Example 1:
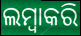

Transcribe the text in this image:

ଲମ୍ବାକରି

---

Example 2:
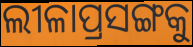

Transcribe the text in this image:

ଲୀଳାପ୍ରସଙ୍ଗକୁ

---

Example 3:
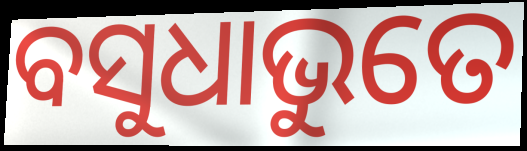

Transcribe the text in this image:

ବସୁଧାଭୁତେ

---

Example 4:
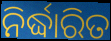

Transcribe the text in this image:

ନିର୍ଦ୍ଧାରିତ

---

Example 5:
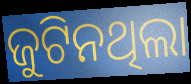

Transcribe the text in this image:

ଜୁଟିନଥିଲା